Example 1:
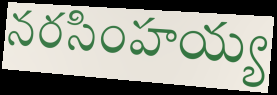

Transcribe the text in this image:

నరసింహయ్య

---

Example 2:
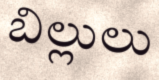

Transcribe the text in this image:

బిల్లులు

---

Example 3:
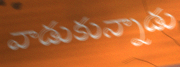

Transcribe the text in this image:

వాడుకున్నాడు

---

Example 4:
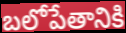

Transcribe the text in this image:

బలోపేతానికి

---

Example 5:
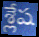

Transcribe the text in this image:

శ్లేష